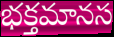
భక్తమానస